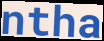
ntha